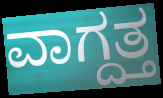
ವಾಗ್ದತ್ತ